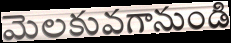
మెలకువగానుండి